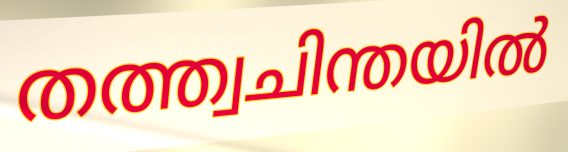
തത്ത്വചിന്തയിൽ